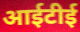
आईटीई